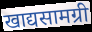
खाद्यसामग्री